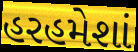
હરહમેશાં